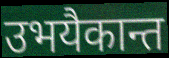
उभयैकान्त